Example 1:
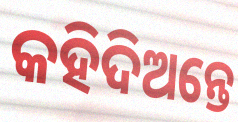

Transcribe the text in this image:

କହିଦିଅନ୍ତେ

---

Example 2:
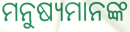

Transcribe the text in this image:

ମନୁଷ୍ୟମାନଙ୍କ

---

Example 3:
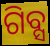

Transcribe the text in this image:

ଗିବ୍ସ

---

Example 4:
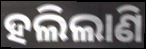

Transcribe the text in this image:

ହଲିଲାଣି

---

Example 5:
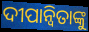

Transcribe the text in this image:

ଦୀପାନ୍ୱିତାଙ୍କୁ